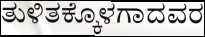
ತುಳಿತಕ್ಕೊಳಗಾದವರ